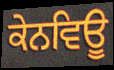
ਕੇਨਵਿਊ